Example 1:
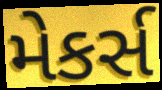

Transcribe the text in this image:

મેકર્સ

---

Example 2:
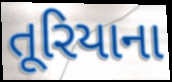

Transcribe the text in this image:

તૂરિયાના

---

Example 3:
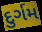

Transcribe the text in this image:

દુર્ગમ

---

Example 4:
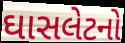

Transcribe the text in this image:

ઘાસલેટનો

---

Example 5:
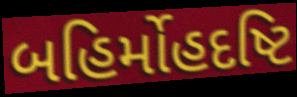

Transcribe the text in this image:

બહિર્મોહદષ્ટિ